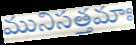
మునిసత్తమాః